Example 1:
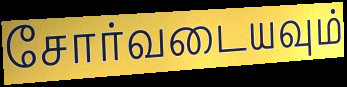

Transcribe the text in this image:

சோர்வடையவும்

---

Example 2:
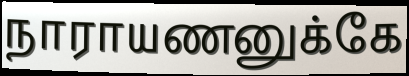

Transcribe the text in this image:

நாராயணனுக்கே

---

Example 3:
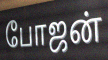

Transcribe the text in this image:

போஜன்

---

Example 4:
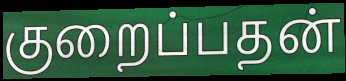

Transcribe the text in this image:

குறைப்பதன்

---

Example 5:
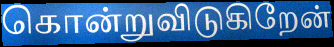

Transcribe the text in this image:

கொன்றுவிடுகிறேன்